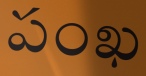
పంఖ